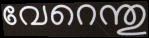
വേറെന്തു